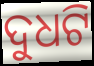
ଦୁଧଟି